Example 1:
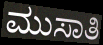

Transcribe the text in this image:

ಮುಸಾತಿ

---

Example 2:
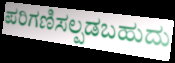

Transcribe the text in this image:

ಪರಿಗಣಿಸಲ್ಪಡಬಹುದು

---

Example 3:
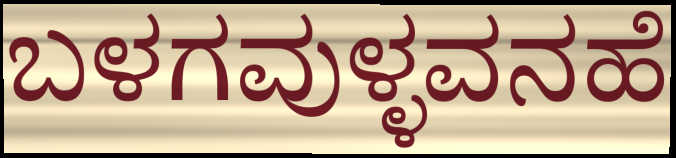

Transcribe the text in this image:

ಬಳಗವುಳ್ಳವನಹೆ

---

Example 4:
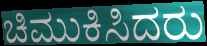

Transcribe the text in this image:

ಚಿಮುಕಿಸಿದರು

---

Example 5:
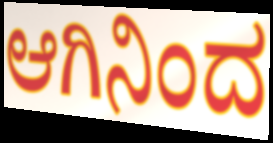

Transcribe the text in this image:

ಆಗಿನಿಂದ